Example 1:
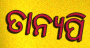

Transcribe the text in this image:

ତାନ୍ୟପି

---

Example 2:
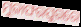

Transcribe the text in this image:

ମୁଜାଫରପୁରରେ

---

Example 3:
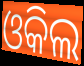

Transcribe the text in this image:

ଓକିଲ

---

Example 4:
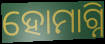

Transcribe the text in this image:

ହୋମାଗ୍ନି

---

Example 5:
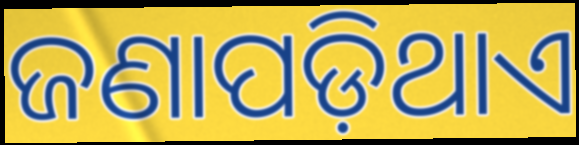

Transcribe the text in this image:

ଜଣାପଡ଼ିଥାଏ